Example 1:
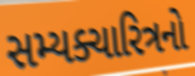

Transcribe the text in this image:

સમ્યક્ચારિત્રનો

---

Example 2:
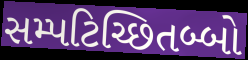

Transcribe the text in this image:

સમ્પટિચ્છિતબ્બો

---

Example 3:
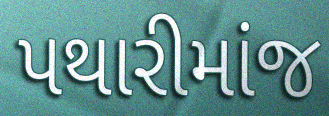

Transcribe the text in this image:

પથારીમાંજ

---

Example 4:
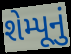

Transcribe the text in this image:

શેમ્પૂનું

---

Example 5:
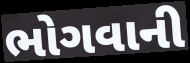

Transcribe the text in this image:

ભોગવાની